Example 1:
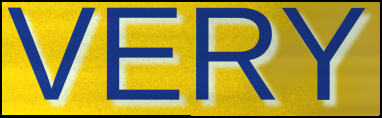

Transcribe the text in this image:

VERY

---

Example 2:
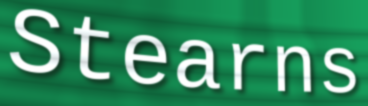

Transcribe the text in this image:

Stearns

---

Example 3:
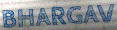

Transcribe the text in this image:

BHARGAV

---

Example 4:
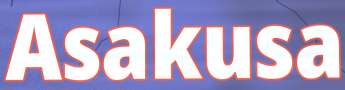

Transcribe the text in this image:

Asakusa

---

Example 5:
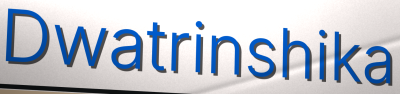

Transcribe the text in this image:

Dwatrinshika